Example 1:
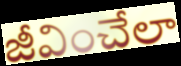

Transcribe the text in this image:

జీవించేలా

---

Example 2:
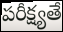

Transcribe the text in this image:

పరీక్ష్యతే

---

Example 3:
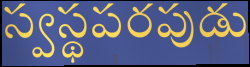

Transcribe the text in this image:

స్వస్థపరపుడు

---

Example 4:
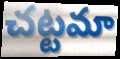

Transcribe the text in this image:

చట్టమా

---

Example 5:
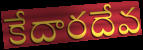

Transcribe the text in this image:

కేదారదేవ